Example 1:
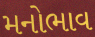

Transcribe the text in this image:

મનોભાવ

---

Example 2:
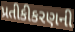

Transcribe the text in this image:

પ્રતીકીકરણની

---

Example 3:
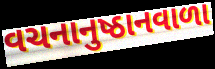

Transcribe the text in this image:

વચનાનુષ્ઠાનવાળા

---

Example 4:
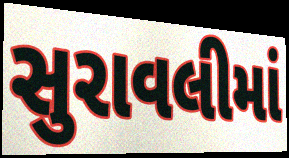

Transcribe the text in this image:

સુરાવલીમાં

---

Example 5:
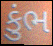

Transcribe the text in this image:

કુંભ